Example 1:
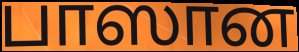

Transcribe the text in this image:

பாஸான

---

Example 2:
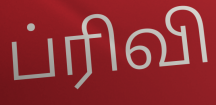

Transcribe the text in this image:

ப்ரிவி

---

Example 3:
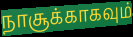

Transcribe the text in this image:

நாசூக்காகவும்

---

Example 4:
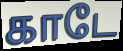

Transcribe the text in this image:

காடே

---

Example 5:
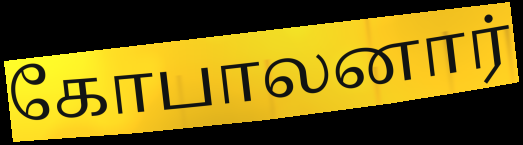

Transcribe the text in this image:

கோபாலனார்